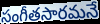
సంగీతసారమనే